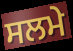
ਸਲਮੇ